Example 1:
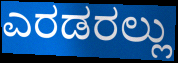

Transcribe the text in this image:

ಎರಡರಲ್ಲು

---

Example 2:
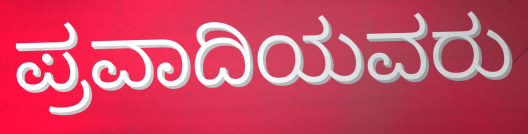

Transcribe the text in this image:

ಪ್ರವಾದಿಯವರು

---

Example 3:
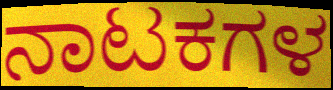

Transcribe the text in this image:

ನಾಟಕಗಳ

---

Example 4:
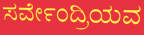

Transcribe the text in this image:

ಸರ್ವೇಂದ್ರಿಯವ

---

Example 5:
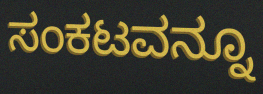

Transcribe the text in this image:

ಸಂಕಟವನ್ನೂ